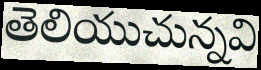
తెలియుచున్నవి